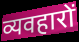
व्यवहारों